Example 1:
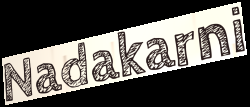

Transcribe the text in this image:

Nadakarni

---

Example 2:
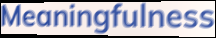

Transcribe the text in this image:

Meaningfulness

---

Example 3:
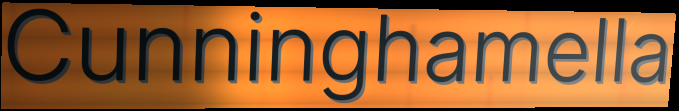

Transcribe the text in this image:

Cunninghamella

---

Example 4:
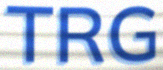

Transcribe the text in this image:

TRG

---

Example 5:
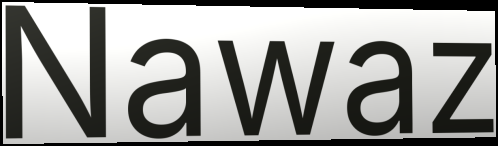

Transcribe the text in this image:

Nawaz